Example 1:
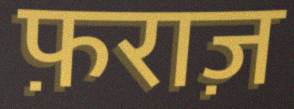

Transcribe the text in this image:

फ़राज़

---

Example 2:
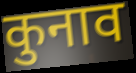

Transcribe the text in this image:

कुनाव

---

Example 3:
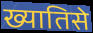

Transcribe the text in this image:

ख्यातिसे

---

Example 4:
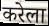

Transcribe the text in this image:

करेला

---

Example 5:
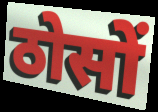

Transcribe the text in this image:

ठोसों